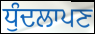
ਧੁੰਦਲਾਪਣ